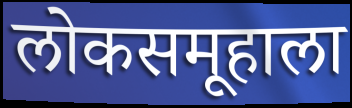
लोकसमूहाला